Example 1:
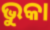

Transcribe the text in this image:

ଭୁକା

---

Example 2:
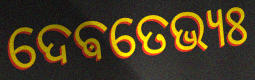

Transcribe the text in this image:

ଦେଵତେଭ୍ୟଃ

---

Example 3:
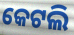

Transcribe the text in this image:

କେଟଲି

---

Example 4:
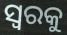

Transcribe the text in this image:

ସ୍ୱରକୁ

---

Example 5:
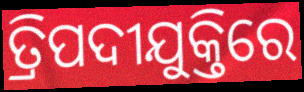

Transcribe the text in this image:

ତ୍ରିପଦୀଯୁକ୍ତିରେ